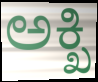
ಅಕ್ಖಿ